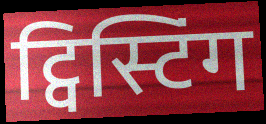
ट्विस्टिंग